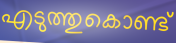
എടുത്തുകൊണ്ട്